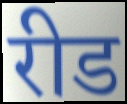
रीड